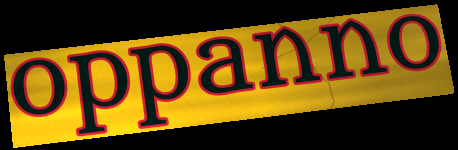
oppanno